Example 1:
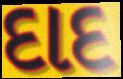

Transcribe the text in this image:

દાદ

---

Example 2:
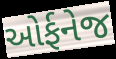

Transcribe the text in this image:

ઓર્ફનેજ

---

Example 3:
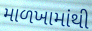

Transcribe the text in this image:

માળખામાંથી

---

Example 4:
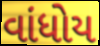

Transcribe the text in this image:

વાંધોય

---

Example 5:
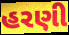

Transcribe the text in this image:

હરણી